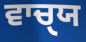
ਵਾਚੑਯ